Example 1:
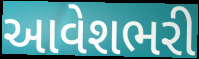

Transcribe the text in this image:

આવેશભરી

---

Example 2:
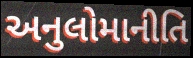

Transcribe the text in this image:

અનુલોમાનીતિ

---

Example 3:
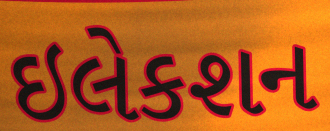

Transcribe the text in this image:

ઇલેકશન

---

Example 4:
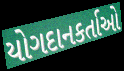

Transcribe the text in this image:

યોગદાનકર્તાઓ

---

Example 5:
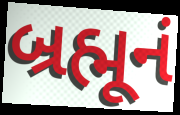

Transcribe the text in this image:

બ્રહ્મૂનં